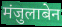
मंजुलाबेन